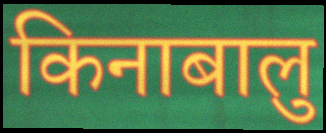
किनाबालु